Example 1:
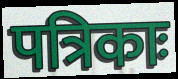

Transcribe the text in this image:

पत्रिकाः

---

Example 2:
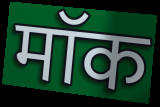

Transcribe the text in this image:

मॉक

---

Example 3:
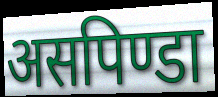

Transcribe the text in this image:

असपिण्डा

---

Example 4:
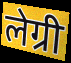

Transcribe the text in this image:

लेग्री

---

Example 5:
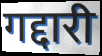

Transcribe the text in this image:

गद्दारी